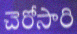
చెరోసారి